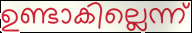
ഉണ്ടാകില്ലെന്ന്